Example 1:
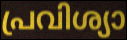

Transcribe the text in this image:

പ്രവിശ്യാ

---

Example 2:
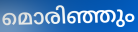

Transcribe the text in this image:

മൊരിഞ്ഞും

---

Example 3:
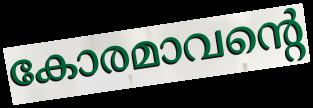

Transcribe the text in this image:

കോരമാവന്റെ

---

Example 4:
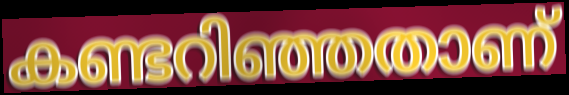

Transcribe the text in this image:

കണ്ടറിഞ്ഞതാണ്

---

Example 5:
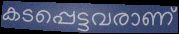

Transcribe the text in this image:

കടപ്പെട്ടവരാണ്